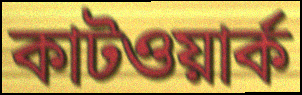
কাটওয়ার্ক